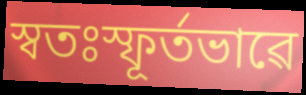
স্বতঃস্ফূৰ্তভাৱে